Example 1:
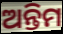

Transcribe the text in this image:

ଅନ୍ତିମ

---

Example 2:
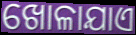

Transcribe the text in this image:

ଖୋଳାଯାଏ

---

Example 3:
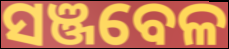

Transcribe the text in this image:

ସଞ୍ଜବେଳ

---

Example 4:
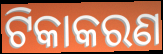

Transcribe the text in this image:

ଟିକାକରଣ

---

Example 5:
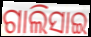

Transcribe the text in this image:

ଗାଲିସାଇ